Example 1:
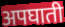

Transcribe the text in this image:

अपघाती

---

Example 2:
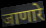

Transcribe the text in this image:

जाणारे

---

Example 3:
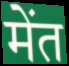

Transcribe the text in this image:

मेंत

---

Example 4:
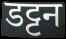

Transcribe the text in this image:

डट्टन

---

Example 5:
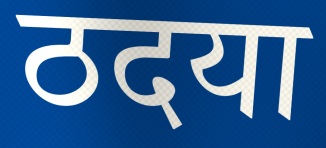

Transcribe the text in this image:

ठदया